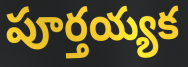
పూర్తయ్యక